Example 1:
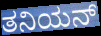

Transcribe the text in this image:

ತನಿಯನ್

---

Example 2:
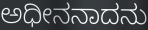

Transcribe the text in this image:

ಅಧೀನನಾದನು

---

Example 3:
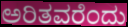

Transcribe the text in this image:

ಅರಿತವರೆಂದು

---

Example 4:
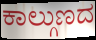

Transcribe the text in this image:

ಕಾಲ್ಗುಣದ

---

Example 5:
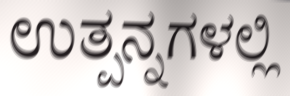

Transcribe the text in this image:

ಉತ್ಪನ್ನಗಳಲ್ಲಿ